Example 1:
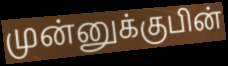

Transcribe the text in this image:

முன்னுக்குபின்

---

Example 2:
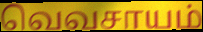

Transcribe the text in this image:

வெவசாயம்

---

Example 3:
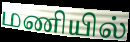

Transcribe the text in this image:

மணியில்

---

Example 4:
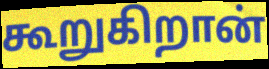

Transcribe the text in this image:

கூறுகிறான்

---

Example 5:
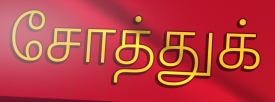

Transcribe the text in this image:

சோத்துக்